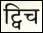
ट्विच